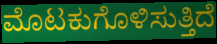
ಮೊಟಕುಗೊಳಿಸುತ್ತಿದೆ